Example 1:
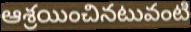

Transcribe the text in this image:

ఆశ్రయించినటువంటి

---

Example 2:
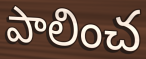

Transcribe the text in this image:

పాలించ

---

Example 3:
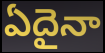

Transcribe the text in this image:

ఏదైనా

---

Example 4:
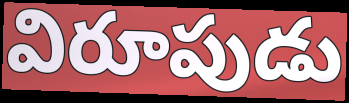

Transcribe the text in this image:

విరూపుడు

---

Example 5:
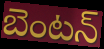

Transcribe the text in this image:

బెంటన్